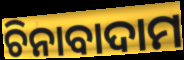
ଚିନାବାଦାମ